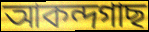
আকন্দগাছ